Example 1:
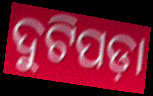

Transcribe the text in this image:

ଦୁଟିପଡ଼ା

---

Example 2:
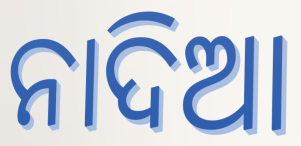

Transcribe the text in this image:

ନାଦିଆ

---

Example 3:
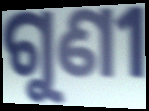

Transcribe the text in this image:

ଗୁଣୀ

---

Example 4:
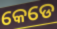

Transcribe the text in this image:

କେଡେ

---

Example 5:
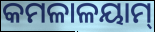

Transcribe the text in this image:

କମଳାଳୟାମ୍